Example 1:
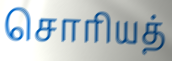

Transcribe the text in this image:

சொரியத்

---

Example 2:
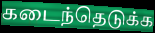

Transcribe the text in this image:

கடைந்தெடுக்க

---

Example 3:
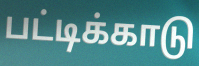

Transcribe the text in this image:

பட்டிக்காடு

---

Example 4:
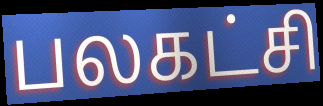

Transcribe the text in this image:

பலகட்சி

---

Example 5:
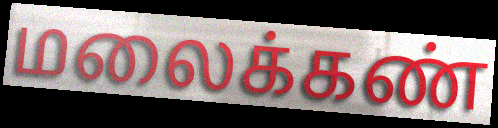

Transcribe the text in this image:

மலைக்கண்